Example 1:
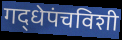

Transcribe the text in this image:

गद्धेपंचविशी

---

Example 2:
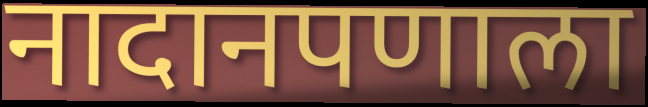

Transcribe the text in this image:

नादानपणाला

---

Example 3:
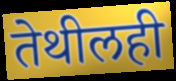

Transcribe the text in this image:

तेथीलही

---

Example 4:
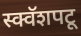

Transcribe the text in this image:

स्क्वॅशपटू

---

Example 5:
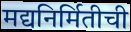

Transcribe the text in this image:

मद्यनिर्मितीची